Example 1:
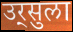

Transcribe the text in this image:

उर्सुला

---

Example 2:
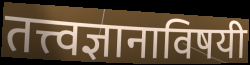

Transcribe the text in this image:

तत्त्वज्ञानाविषयी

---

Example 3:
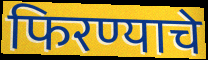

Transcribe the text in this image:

फिरण्याचे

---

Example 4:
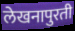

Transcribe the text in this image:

लेखनापुरती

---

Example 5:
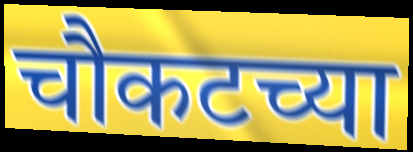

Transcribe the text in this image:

चौकटच्या